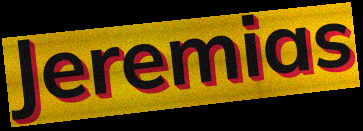
Jeremias